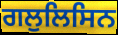
ਗਲੁਲਿਸਿਨ